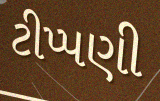
ટીપ્પણી